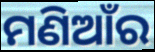
ମଣିଆଁର